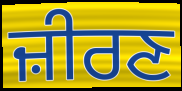
ਜ਼ੀਰਣ